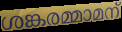
ശങ്കരമ്മാമന്